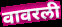
वावरली